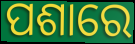
ପଶାରେ